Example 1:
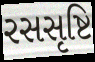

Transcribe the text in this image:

રસસૃષ્ટિ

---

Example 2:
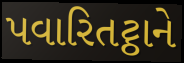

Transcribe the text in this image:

પવારિતટ્ઠાને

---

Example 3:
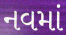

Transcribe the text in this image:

નવમાં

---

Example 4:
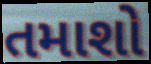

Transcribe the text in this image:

તમાશો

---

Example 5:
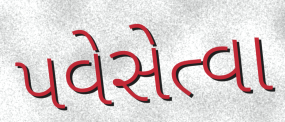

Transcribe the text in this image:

પવેસેત્વા